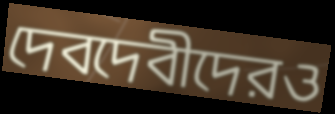
দেবদেবীদেরও